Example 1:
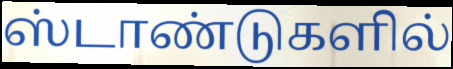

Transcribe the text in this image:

ஸ்டாண்டுகளில்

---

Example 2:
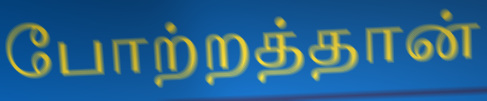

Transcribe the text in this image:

போற்றத்தான்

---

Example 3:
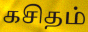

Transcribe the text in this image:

கசிதம்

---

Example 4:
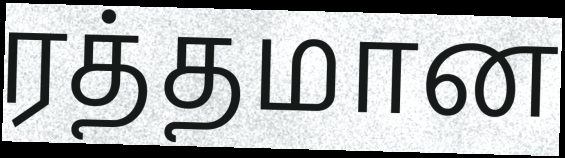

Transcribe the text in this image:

ரத்தமான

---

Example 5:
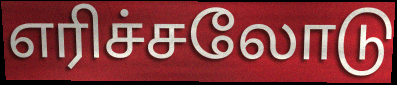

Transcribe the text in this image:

எரிச்சலோடு